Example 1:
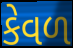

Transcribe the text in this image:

કેવળ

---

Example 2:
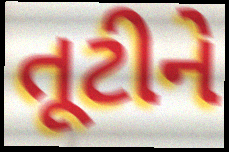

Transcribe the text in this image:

તૂટીને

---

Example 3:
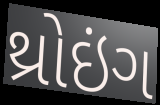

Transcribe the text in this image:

થ્રોઇંગ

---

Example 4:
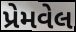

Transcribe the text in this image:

પ્રેમવેલ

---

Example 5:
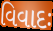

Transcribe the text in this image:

વિવાદઃ